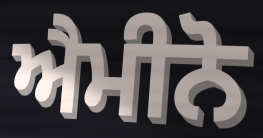
ਐਮੀਨੋ